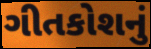
ગીતકોશનું